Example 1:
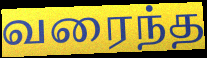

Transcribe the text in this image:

வரைந்த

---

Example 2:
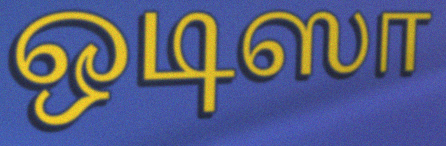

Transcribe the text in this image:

ஒடிஸா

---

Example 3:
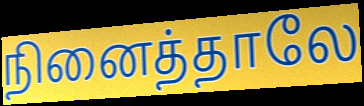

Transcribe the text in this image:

நினைத்தாலே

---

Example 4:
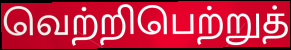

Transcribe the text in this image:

வெற்றிபெற்றுத்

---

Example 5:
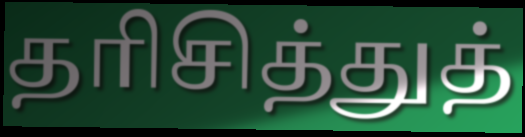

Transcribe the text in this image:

தரிசித்துத்